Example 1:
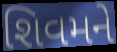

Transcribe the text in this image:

શિવમને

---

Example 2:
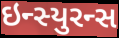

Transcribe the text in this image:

ઇન્સ્યુરન્સ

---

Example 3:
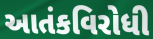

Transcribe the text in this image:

આતંકવિરોધી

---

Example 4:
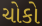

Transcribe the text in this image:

ચોકો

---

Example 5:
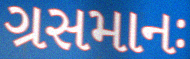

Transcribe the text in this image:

ગ્રસમાનઃ